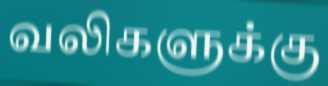
வலிகளுக்கு